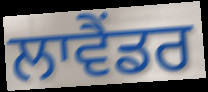
ਲਾਵੈਂਡਰ